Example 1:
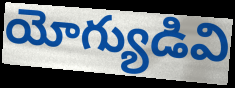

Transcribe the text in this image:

యోగ్యుడివి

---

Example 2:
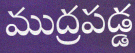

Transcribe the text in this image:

ముద్రపడ్డ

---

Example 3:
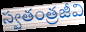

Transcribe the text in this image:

స్వతంత్రజీవి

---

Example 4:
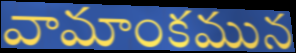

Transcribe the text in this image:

వామాంకమున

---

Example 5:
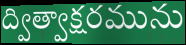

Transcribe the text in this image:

ద్విత్వాక్షరమును